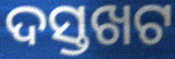
ଦସ୍ତଖଟ